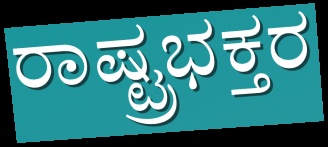
ರಾಷ್ಟ್ರಭಕ್ತರ